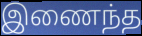
இணைந்த